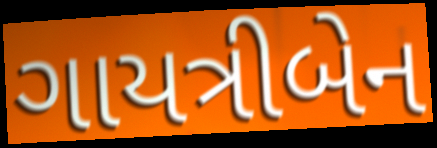
ગાયત્રીબેન